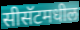
सीसॅटमधील